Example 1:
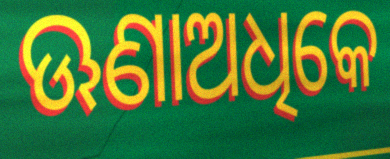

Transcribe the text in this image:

ଊଣାଅଧିକେ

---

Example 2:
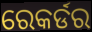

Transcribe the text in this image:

ରେକର୍ଡର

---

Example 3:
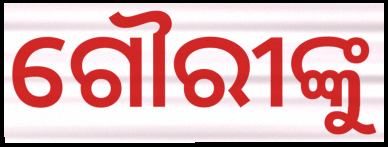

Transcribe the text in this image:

ଗୌରୀଙ୍କୁ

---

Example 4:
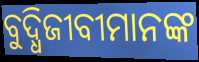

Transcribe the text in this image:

ବୁଦ୍ଧିଜୀବୀମାନଙ୍କ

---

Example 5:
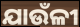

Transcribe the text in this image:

ଯାଉଁଳୀ